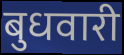
बुधवारी